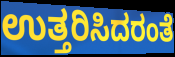
ಉತ್ತರಿಸಿದರಂತೆ